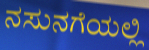
ನಸುನಗೆಯಲ್ಲಿ